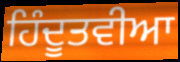
ਹਿੰਦੂਤਵੀਆ